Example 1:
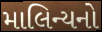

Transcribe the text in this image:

માલિન્યનો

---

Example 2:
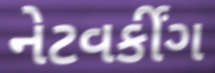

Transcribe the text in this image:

નેટવર્કીંગ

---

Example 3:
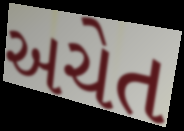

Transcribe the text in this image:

અચેત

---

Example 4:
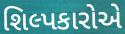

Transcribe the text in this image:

શિલ્પકારોએ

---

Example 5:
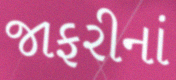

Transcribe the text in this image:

જાફરીનાં